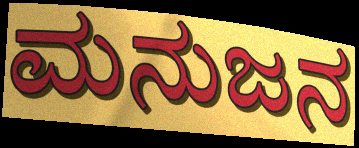
ಮನುಜನ